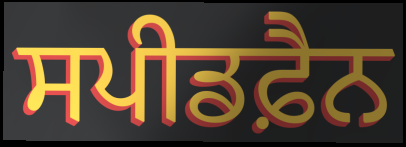
ਸਪੀਡਫ਼ੈਨ